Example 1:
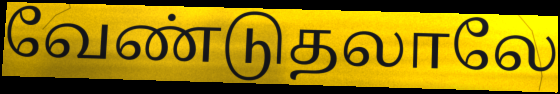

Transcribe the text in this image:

வேண்டுதலாலே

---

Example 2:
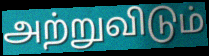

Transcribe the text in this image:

அற்றுவிடும்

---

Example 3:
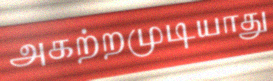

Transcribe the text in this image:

அகற்றமுடியாது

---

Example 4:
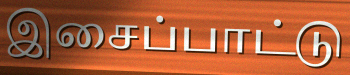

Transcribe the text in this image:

இசைப்பாட்டு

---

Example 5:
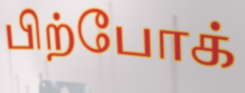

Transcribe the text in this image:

பிற்போக்